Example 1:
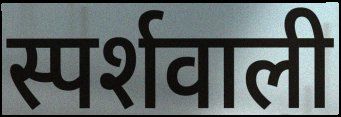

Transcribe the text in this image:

स्पर्शवाली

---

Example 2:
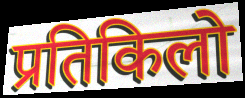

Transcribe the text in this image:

प्रतिकिलो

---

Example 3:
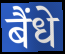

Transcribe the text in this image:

बैंधे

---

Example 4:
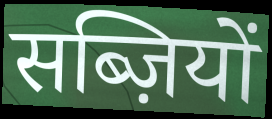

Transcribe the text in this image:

सब्ज़ियों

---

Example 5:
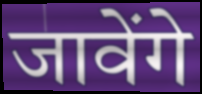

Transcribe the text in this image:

जावेंगे